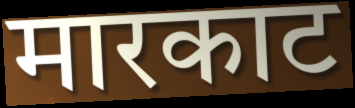
मारकाट